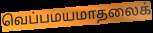
வெப்பமயமாதலைக்